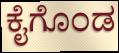
ಕೈಗೊಂಡ